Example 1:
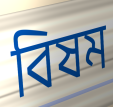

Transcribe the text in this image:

বিষম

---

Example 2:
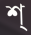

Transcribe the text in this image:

শ্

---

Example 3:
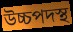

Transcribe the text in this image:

উচ্চপদস্থ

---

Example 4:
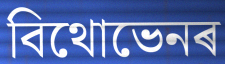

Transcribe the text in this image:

বিথোভেনৰ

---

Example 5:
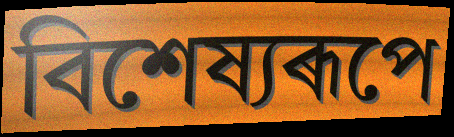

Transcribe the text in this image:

বিশেষ্যৰূপে